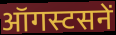
ऑगस्टसनें